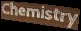
Chemistry